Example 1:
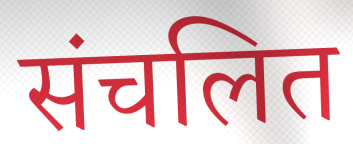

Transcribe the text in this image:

संचलित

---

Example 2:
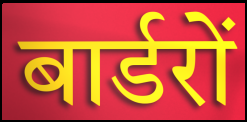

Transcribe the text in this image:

बार्डरों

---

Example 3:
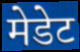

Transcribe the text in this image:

मेडेट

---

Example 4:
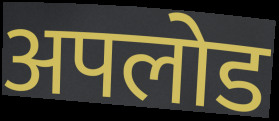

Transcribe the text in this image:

अपलोड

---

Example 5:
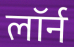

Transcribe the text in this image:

लॉर्न